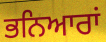
ਭਨਿਆਰਾਂ